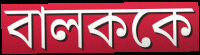
বালককে